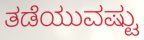
ತಡೆಯುವಷ್ಟು